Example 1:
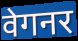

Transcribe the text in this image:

वेगनर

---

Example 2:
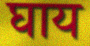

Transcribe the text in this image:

घाय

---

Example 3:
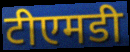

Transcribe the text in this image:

टीएमडी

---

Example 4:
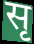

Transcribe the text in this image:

सृ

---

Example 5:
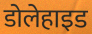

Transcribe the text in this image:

डोलेहाइड